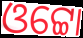
ଓଟ୍ଟୋ